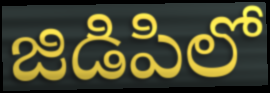
జిడిపిలో